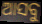
ଆସବୁ